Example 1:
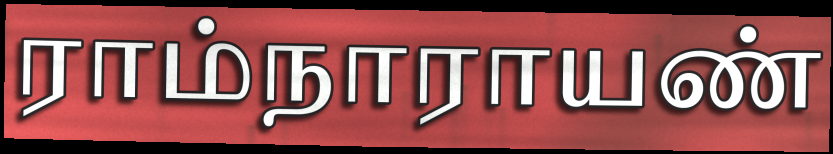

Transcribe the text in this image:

ராம்நாராயண்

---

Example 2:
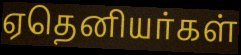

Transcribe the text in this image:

ஏதெனியர்கள்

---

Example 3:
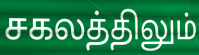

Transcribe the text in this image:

சகலத்திலும்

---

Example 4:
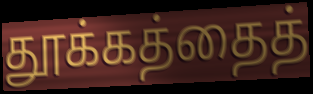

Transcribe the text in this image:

தூக்கத்தைத்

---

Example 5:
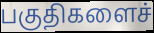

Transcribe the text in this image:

பகுதிகளைச்